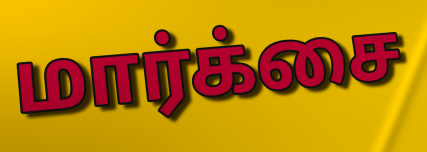
மார்க்சை